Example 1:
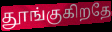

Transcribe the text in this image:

தூங்குகிறதே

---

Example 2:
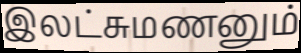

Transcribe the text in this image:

இலட்சுமணனும்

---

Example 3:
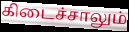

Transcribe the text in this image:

கிடைச்சாலும்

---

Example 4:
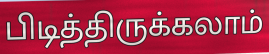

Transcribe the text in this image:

பிடித்திருக்கலாம்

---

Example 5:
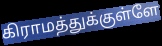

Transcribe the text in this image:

கிராமத்துக்குள்ளே